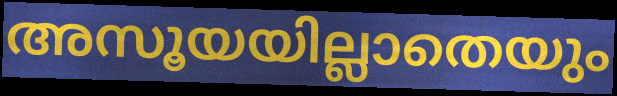
അസൂയയില്ലാതെയും